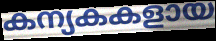
കന്യകകളായ